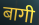
बागी